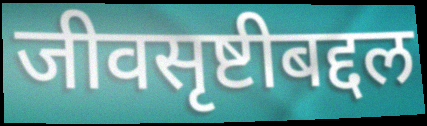
जीवसृष्टीबद्दल